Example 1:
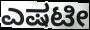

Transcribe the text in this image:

ಎಷಟೀ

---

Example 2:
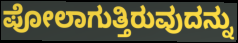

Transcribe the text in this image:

ಪೋಲಾಗುತ್ತಿರುವುದನ್ನು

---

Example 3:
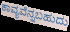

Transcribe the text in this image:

ಕಾವ್ಯವೆನ್ನಬಹುದು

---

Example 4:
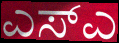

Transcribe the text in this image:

ಎಸ್ಎ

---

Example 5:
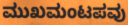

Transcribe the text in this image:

ಮುಖಮಂಟಪವು